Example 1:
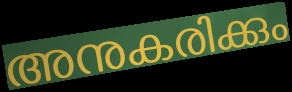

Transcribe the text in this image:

അനുകരിക്കും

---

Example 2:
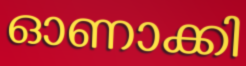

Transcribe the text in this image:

ഓണാക്കി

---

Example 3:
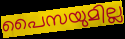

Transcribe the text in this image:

പൈസയുമില്ല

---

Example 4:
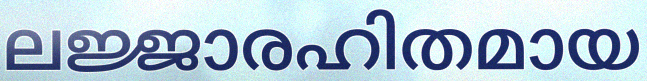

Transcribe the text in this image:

ലജ്ജാരഹിതമായ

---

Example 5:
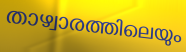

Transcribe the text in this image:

താഴ്വാരത്തിലെയും